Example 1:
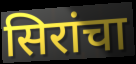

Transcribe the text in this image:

सिरांचा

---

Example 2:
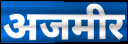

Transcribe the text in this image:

अजमीर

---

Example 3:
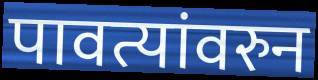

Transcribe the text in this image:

पावत्यांवरुन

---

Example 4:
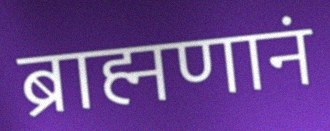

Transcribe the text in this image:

ब्राह्मणानं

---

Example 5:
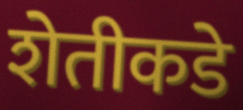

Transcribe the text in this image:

शेतीकडे